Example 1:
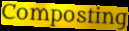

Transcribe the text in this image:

Composting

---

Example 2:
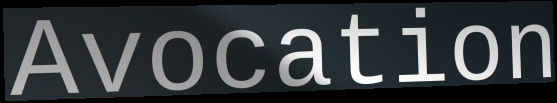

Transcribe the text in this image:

Avocation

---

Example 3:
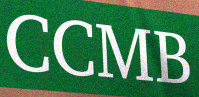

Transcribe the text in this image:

CCMB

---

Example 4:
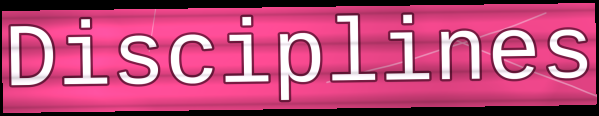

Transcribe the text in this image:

Disciplines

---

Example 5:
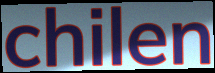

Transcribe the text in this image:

chilen